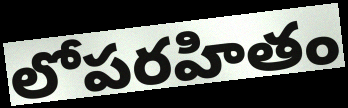
లోపరహితం